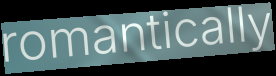
romantically